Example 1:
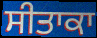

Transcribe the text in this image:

ਸੀਤਾਕਾ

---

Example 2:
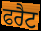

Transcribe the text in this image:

ਫਰੈਟ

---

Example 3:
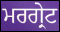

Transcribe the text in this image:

ਮਰਗ੍ਰੇਟ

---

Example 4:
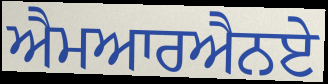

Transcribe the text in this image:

ਐਮਆਰਐਨਏ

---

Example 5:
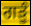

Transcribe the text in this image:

ਗੜੂੰ